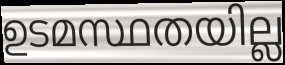
ഉടമസ്ഥതയില്ല